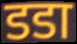
डडा